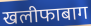
खलीफाबाग